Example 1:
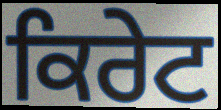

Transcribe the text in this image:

ਕਿਰੇਟ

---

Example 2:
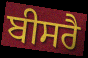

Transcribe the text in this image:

ਬੀਸਰੈ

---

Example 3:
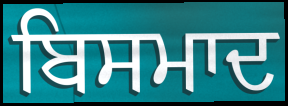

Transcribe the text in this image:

ਬਿਸਮਾਦ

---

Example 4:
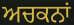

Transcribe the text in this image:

ਅਚਕਨਾਂ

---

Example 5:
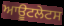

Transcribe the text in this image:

ਆਊਟਲੇਟਸ